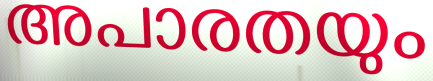
അപാരതയും